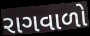
રાગવાળો